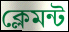
ক্লেমন্ট